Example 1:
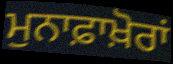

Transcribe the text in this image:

ਮੁਨਾਫ਼ਾਖ਼ੋਰਾਂ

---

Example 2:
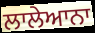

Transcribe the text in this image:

ਲਾਲੇਆਨਾ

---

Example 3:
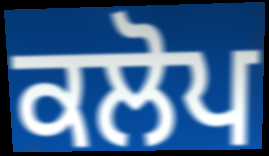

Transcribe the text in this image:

ਕਲੋਪ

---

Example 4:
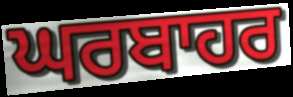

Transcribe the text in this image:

ਘਰਬਾਹਰ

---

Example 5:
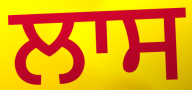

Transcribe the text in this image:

ਲਾਸ